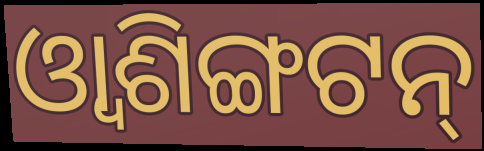
ଓ୍ୱାଶିଙ୍ଗଟନ୍